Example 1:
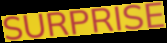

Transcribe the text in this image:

SURPRISE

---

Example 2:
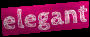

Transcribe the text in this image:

elegant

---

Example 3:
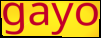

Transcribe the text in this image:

gayo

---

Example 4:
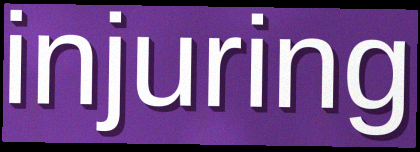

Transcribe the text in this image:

injuring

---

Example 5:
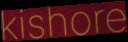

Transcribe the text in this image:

kishore